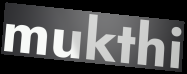
mukthi